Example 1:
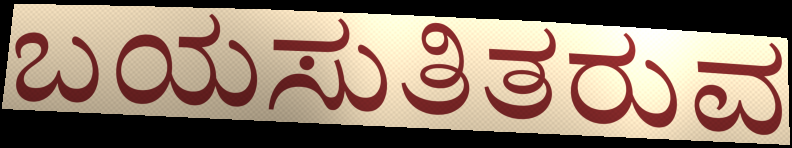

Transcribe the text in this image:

ಬಯಸುತಿತರುವ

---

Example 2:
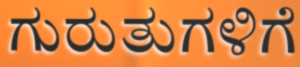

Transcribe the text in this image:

ಗುರುತುಗಳಿಗೆ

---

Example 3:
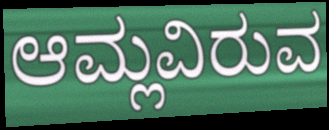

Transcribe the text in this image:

ಆಮ್ಲವಿರುವ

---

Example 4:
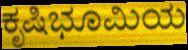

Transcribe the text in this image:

ಕೃಷಿಭೂಮಿಯ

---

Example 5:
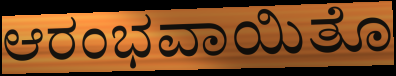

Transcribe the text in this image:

ಆರಂಭವಾಯಿತೊ